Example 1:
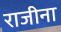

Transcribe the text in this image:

राजीना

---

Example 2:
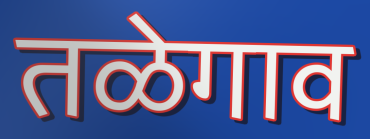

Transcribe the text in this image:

तळेगाव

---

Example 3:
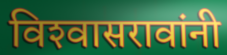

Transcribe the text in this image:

विश्वासरावांनी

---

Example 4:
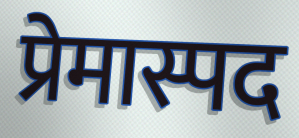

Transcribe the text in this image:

प्रेमास्पद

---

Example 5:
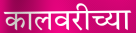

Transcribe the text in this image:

कालवरीच्या